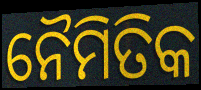
ନୈମିତିକ